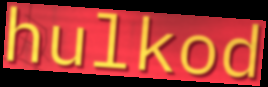
hulkod